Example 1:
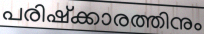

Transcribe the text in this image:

പരിഷ്ക്കാരത്തിനും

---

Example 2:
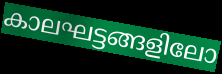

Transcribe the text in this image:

കാലഘട്ടങ്ങളിലോ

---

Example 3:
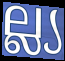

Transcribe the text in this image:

ല്ല്യ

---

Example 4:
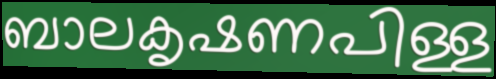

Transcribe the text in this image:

ബാലകൃഷണപിള്ള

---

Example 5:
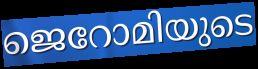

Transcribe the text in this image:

ജെറോമിയുടെ